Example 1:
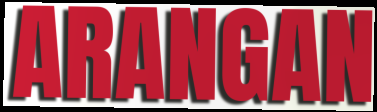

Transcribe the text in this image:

ARANGAN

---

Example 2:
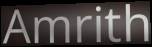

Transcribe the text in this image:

Amrith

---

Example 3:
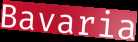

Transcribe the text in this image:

Bavaria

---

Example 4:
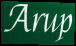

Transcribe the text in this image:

Arup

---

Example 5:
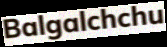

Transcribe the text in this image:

Balgalchchu